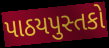
પાઠયપુસ્તકો